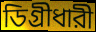
ডিগ্রীধারী